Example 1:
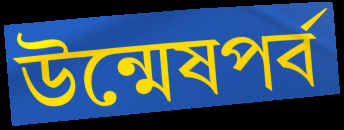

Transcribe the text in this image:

উন্মেষপর্ব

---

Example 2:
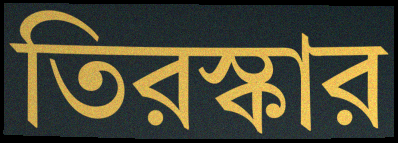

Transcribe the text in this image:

তিরস্কার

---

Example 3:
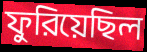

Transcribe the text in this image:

ফুরিয়েছিল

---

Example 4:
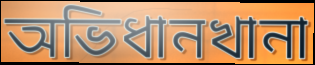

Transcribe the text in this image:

অভিধানখানা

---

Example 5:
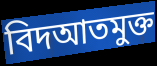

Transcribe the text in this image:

বিদআতমুক্ত